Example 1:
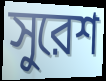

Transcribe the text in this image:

সুরেশ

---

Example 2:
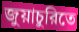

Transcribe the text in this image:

জুয়াচুরিতে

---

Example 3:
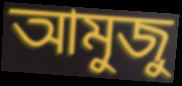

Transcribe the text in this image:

আমুজু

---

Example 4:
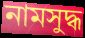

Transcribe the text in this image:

নামসুদ্ধ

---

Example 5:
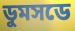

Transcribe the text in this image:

ডুমসডে